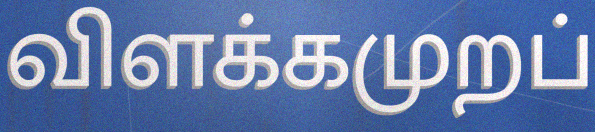
விளக்கமுறப்